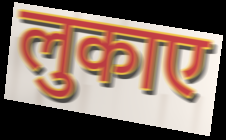
लुकाए